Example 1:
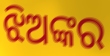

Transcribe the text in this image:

ଝିଅଙ୍କର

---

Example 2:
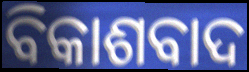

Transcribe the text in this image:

ବିକାଶବାଦ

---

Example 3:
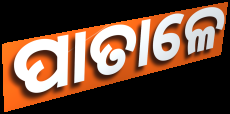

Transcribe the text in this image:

ପାତାଳେ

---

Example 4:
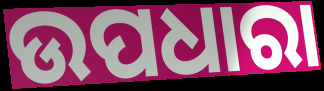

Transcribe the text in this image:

ଉପଧାରା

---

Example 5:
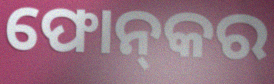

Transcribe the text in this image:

ଫୋନ୍‌କର